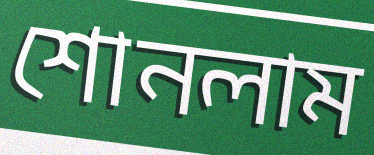
শোনলাম